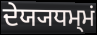
ਦੇਯ੍ਯਧਮ੍ਮਂ